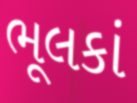
ભૂલકાં